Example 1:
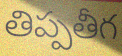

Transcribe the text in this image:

తిప్పతీగ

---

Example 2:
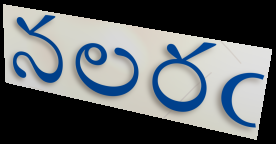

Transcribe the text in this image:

నలరఁ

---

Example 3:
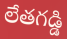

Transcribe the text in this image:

లేతగడ్డి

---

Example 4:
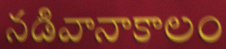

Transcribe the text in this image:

నడివానాకాలం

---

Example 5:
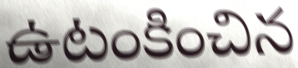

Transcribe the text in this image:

ఉటంకించిన